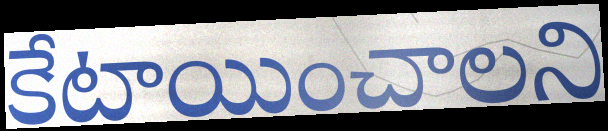
కేటాయించాలని